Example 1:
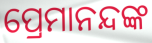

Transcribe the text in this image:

ପ୍ରେମାନନ୍ଦଙ୍କ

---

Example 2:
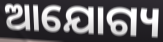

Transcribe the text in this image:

ଆଯୋଗ୍ୟ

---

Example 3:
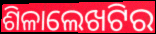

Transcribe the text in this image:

ଶିଳାଲେଖଟିର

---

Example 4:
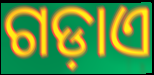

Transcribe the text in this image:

ଗଡ଼ାଏ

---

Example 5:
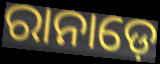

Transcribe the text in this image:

ରାନାଡ଼େ